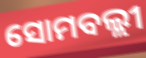
ସୋମବଲ୍ଲୀ